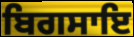
ਬਿਗਸਾਇ